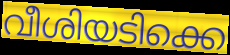
വീശിയടിക്കെ